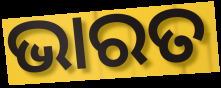
ଭାରତ